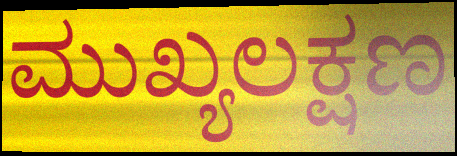
ಮುಖ್ಯಲಕ್ಷಣ